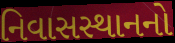
નિવાસસ્થાનનો